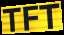
TFT